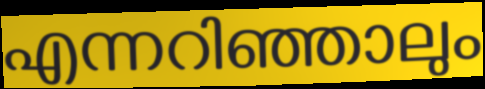
എന്നറിഞ്ഞാലും